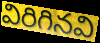
విరిగినవి